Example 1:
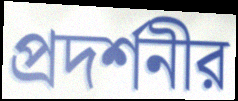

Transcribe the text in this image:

প্রদর্শনীর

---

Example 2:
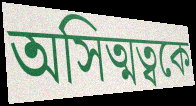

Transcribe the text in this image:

অসিত্মত্বকে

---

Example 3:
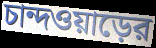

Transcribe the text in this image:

চান্দওয়াড়ের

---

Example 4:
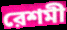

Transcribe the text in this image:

রেশমী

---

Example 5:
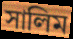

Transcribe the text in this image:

সালিম